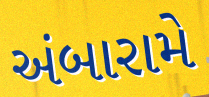
અંબારામે